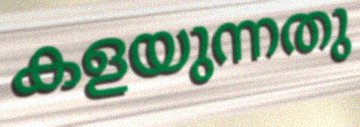
കളയുന്നതു